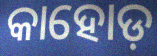
କାହୋଡ଼